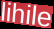
lihile